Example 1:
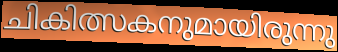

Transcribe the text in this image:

ചികിത്സകനുമായിരുന്നു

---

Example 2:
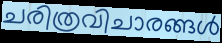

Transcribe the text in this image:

ചരിത്രവിചാരങ്ങൾ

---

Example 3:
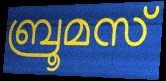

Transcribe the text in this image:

ബ്രൂമസ്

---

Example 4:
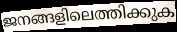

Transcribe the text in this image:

ജനങ്ങളിലെത്തിക്കുക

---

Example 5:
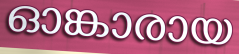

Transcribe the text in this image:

ഓങ്കാരായ